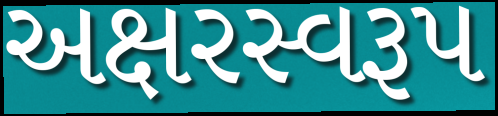
અક્ષરસ્વરૂપ